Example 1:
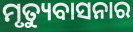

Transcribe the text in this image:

ମୃତ୍ୟୁବାସନାର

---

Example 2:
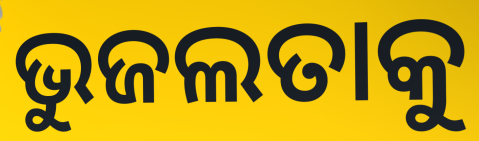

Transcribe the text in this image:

ଭୁଜଲତାକୁ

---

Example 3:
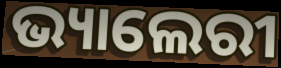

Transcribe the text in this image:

ଭ୍ୟାଲେରୀ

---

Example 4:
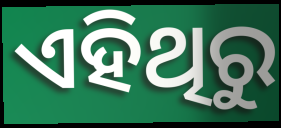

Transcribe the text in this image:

ଏହିଥିରୁ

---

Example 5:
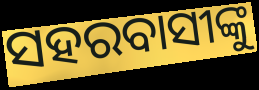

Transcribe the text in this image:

ସହରବାସୀଙ୍କୁ